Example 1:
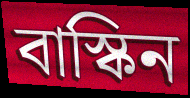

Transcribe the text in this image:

বাস্কিন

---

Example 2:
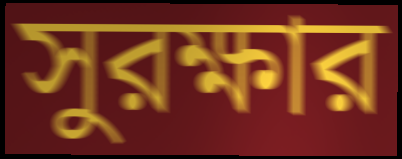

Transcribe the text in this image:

সুরক্ষার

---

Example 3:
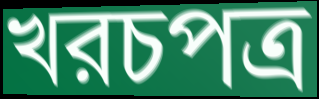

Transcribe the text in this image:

খরচপত্র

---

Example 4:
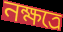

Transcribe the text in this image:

নক্ষত্রে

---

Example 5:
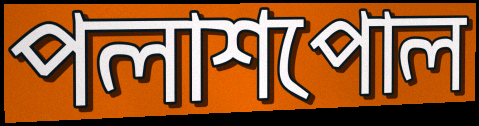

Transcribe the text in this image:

পলাশপোল